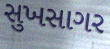
સુખસાગર